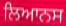
ਲਿਆਨਸ